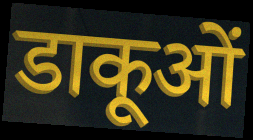
डाकूओं